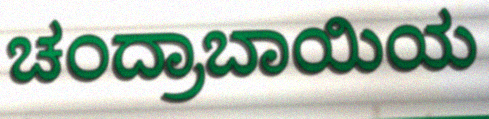
ಚಂದ್ರಾಬಾಯಿಯ